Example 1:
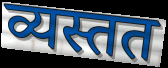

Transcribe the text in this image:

व्यस्तत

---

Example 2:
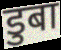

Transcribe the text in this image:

डुबा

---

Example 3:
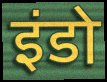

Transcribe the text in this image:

इंडो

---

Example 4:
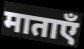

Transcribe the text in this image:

माताएँ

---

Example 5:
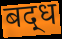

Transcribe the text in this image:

बद्ध